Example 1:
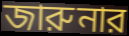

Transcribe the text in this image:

জারুনার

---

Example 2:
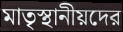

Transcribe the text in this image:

মাতৃস্থানীয়দের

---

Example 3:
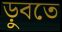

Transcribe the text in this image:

ড়ুবতে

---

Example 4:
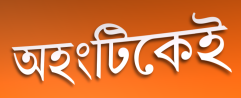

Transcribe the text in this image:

অহংটিকেই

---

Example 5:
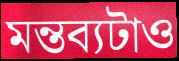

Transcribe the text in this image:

মন্তব্যটাও